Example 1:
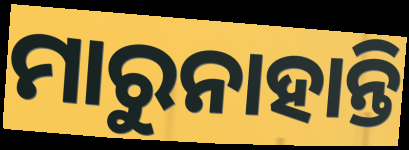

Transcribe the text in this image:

ମାରୁନାହାନ୍ତି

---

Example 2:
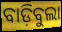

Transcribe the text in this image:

ବାଡ଼ିବୁଲା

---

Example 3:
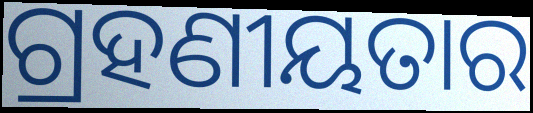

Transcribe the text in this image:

ଗ୍ରହଣୀୟତାର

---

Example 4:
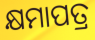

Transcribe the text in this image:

କ୍ଷମାପତ୍ର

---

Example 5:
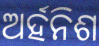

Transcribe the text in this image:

ଅର୍ହନିଶ